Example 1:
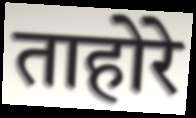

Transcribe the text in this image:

ताहोरे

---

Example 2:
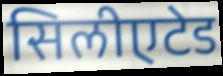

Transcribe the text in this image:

सिलीएटेड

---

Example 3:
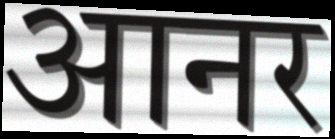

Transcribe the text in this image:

आनर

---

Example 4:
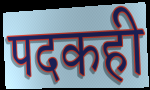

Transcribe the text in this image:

पदकही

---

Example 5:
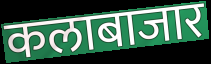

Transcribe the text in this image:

कलाबाजार